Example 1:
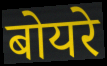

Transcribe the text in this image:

बोयरे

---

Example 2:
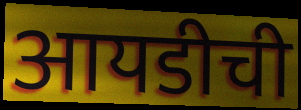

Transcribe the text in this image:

आयडीची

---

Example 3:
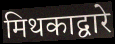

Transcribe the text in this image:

मिथकाद्वारे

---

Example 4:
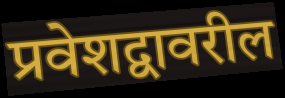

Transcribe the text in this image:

प्रवेशद्वावरील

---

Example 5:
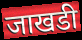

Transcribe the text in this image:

जाखडी